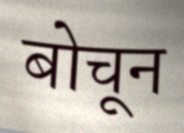
बोचून